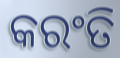
କରଂତି